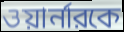
ওয়ার্নারকে